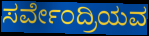
ಸರ್ವೇಂದ್ರಿಯವ